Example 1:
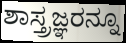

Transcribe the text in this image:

ಶಾಸ್ತ್ರಜ್ಞರನ್ನೂ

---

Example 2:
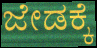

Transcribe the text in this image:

ಜೇಡಕ್ಕೆ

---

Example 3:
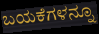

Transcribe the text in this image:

ಬಯಕೆಗಳನ್ನೂ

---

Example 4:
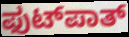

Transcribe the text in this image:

ಫುಟ್‍ಪಾತ್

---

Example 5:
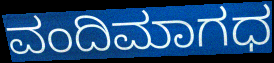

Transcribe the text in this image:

ವಂದಿಮಾಗಧ